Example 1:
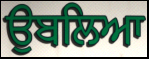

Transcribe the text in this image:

ਉਬਲਿਆ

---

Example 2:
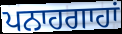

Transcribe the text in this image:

ਪਨਾਹਗਾਹਾਂ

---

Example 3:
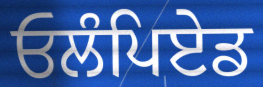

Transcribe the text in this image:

ਓਲੰਪਿਏਡ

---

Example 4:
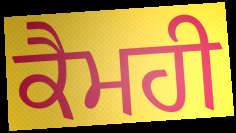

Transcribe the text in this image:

ਕੈਮਹੀ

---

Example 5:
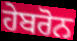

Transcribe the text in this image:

ਹੇਬਰੋਨ